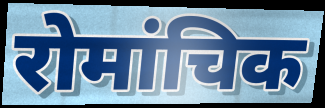
रोमांचिक